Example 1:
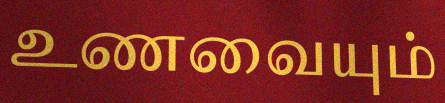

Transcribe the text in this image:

உணவையும்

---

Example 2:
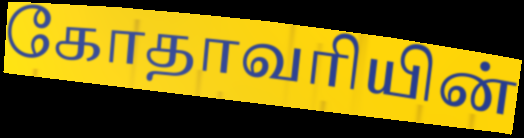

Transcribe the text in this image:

கோதாவரியின்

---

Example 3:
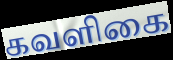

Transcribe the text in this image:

கவளிகை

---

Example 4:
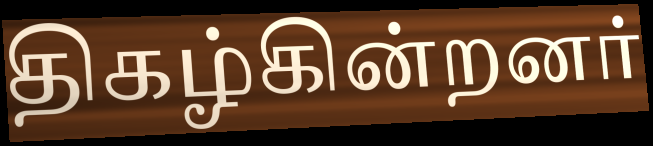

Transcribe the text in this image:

திகழ்கின்றனர்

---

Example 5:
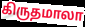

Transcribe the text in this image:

கிருதமாலா